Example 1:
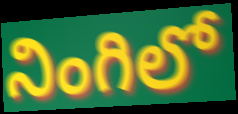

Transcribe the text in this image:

నింగిలో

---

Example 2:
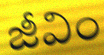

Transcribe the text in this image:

జీవిం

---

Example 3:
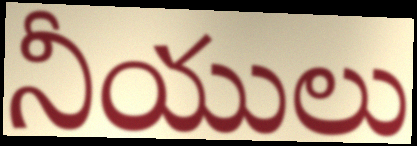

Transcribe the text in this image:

నీయులు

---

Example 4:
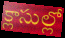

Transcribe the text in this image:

క్లాసుల్లో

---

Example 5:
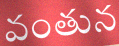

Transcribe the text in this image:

వంతున